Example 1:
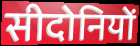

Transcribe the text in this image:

सीदोनियों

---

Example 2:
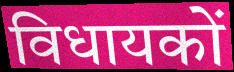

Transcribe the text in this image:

विधायकों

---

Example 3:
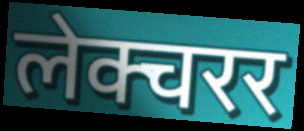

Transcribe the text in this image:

लेक्चरर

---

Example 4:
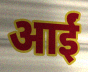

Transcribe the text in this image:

आईं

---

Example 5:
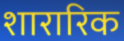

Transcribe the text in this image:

शारारिक